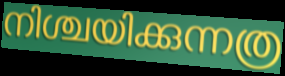
നിശ്ചയിക്കുന്നത്ര